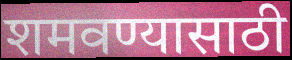
शमवण्यासाठी